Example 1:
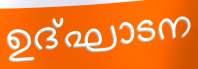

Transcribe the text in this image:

ഉദ്ഘാടന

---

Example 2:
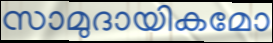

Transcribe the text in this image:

സാമുദായികമോ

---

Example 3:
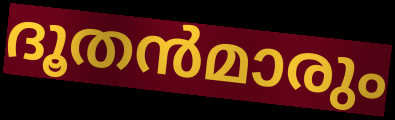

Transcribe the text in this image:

ദൂതൻമാരും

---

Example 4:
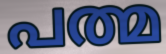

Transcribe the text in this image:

പത്മ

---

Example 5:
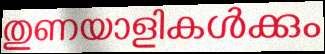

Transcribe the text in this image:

തുണയാളികൾക്കും